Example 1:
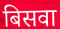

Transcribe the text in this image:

बिसवा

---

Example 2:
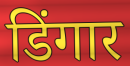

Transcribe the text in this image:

डिंगार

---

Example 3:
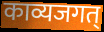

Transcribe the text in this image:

काव्यजगत्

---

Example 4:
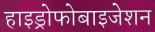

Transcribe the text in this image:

हाइड्रोफोबाइजेशन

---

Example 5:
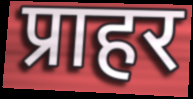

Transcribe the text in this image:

प्राहर